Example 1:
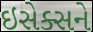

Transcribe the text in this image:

ઇસેક્સને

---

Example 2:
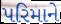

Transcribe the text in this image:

પરિમાને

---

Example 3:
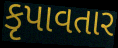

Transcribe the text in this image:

કૃપાવતાર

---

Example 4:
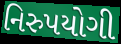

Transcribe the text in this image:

નિરુપયોગી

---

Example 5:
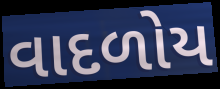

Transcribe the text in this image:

વાદળોય